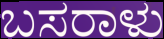
ಬಸರಾಳು